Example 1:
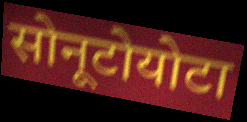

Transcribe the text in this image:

सोनूटोयोटा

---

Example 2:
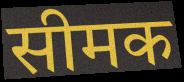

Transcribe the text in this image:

सीमक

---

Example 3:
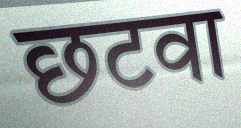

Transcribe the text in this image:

छटवा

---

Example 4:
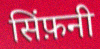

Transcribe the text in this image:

सिंफ़नी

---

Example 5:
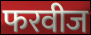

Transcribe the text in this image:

फरवीज